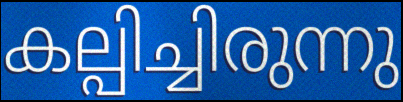
കല്പിച്ചിരുന്നു